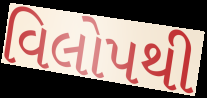
વિલોપથી